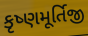
કૃષ્ણમૂર્તિજી